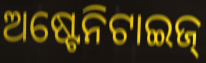
ଅଷ୍ଟେନିଟାଇଜ୍